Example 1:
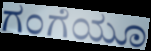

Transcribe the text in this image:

ಗಂಗೆಯೂ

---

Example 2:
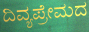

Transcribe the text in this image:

ದಿವ್ಯಪ್ರೇಮದ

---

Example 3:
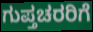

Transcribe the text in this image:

ಗುಪ್ತಚರರಿಗೆ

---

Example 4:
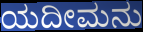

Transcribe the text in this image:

ಯದೀಮನು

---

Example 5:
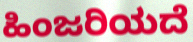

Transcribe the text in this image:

ಹಿಂಜರಿಯದೆ